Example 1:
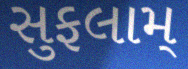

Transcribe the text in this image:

સુફલામ્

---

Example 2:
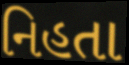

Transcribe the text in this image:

નિહતા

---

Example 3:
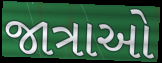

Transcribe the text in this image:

જાત્રાઓ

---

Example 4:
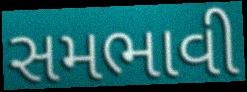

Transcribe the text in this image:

સમભાવી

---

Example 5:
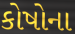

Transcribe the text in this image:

કોષોના